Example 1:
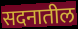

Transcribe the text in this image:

सदनातील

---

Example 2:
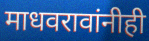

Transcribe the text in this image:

माधवरावांनीही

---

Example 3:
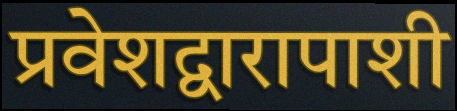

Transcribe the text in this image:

प्रवेशद्वारापाशी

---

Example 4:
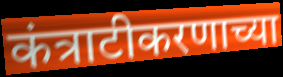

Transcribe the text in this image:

कंत्राटीकरणाच्या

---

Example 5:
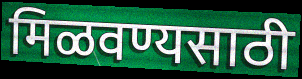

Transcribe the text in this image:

मिळवण्यसाठी